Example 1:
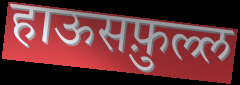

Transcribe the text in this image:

हाऊसफ़ुल्ल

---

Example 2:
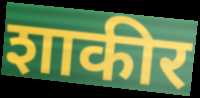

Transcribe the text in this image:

शाकीर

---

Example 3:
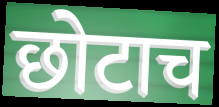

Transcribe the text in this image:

छोटाच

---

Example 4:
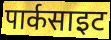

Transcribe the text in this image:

पार्कसाइट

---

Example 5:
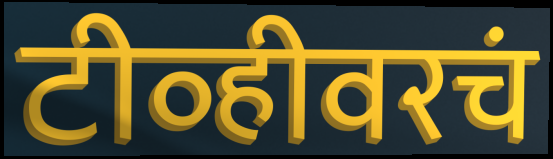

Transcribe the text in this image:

टीव्हीवरचं